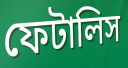
ফেটালিস